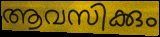
ആവസിക്കും